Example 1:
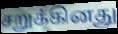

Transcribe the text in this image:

சறுக்கினது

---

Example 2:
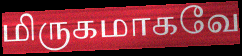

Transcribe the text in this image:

மிருகமாகவே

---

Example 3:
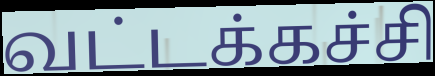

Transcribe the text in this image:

வட்டக்கச்சி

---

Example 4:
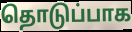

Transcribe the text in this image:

தொடுப்பாக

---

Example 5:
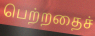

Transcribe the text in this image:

பெற்றதைச்